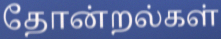
தோன்றல்கள்